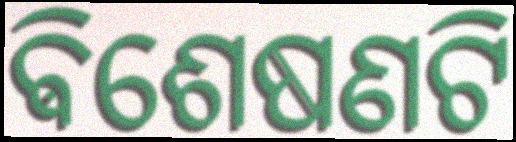
ଵିଶେଷଣଟି